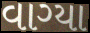
વાગ્યા